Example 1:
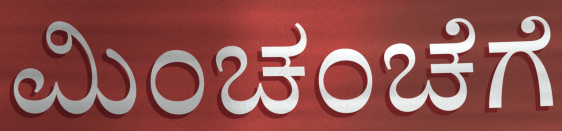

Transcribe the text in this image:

ಮಿಂಚಂಚೆಗೆ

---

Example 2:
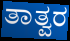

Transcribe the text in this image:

ತಾತ್ವರ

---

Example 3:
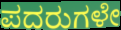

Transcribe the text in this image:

ಪದರುಗಳೇ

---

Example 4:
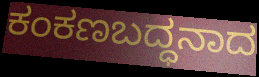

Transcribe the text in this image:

ಕಂಕಣಬದ್ಧನಾದ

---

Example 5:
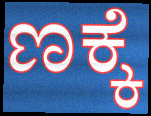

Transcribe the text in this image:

ಣಕ್ಕೆ